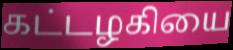
கட்டழகியை